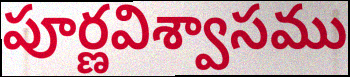
పూర్ణవిశ్వాసము